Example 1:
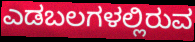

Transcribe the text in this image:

ಎಡಬಲಗಳಲ್ಲಿರುವ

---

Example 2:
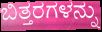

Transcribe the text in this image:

ಬಿತ್ತರಗಳನ್ನು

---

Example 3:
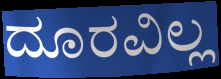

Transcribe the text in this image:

ದೂರವಿಲ್ಲ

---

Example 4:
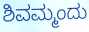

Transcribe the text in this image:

ಶಿವಮ್ಮಂದು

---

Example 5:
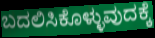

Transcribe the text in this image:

ಬದಲಿಸಿಕೊಳ್ಳುವುದಕ್ಕೆ